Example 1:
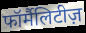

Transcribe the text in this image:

फॉर्मैलिटीज़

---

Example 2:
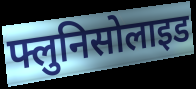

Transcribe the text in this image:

फ्लुनिसोलाइड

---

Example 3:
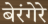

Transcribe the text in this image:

बेरंगेरे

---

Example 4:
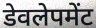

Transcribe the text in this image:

डेवलेपमेंट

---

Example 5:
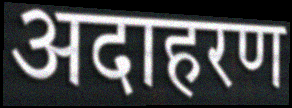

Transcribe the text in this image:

अदाहरण